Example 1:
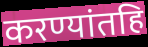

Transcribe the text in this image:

करण्यांतहि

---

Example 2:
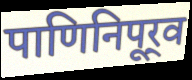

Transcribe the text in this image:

पाणिनिपूर्व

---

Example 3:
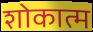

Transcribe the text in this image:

शोकात्म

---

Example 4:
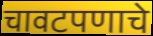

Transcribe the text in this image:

चावटपणाचे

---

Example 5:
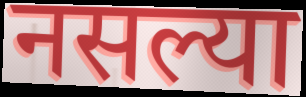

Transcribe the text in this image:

नसल्या